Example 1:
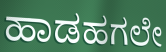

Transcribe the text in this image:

ಹಾಡಹಗಲೇ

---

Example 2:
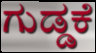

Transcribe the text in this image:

ಗುಡ್ಡಕೆ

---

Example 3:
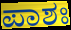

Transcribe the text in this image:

ಪಾಶಃ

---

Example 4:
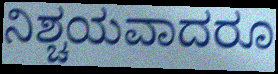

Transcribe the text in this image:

ನಿಶ್ಚಯವಾದರೂ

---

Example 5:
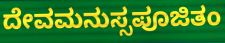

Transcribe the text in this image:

ದೇವಮನುಸ್ಸಪೂಜಿತಂ